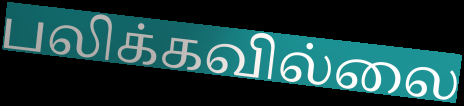
பலிக்கவில்லை